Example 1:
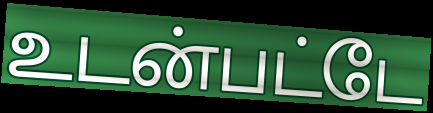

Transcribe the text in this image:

உடன்பட்டே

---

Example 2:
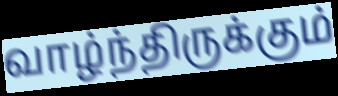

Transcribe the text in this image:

வாழ்ந்திருக்கும்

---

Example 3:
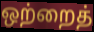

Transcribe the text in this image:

ஒற்றைத்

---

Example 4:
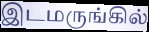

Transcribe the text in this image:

இடமருங்கில்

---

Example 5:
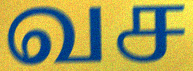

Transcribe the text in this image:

வச